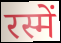
रस्‍में